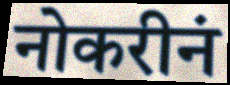
नोकरीनं